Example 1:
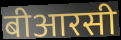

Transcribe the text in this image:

बीआरसी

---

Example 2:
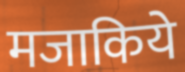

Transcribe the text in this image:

मजाकिये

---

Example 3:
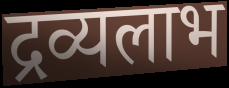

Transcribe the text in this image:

द्रव्यलाभ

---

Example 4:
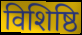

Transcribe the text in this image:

विशिष्ठि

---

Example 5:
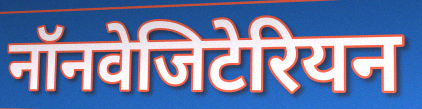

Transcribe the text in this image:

नॉनवेजिटेरियन